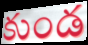
కుండ